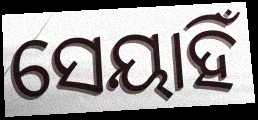
ସେୟାହିଁ